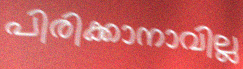
പിരിക്കാനാവില്ല